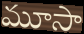
మూసా